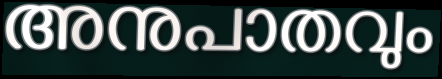
അനുപാതവും